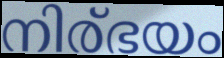
നിര്ഭയം